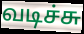
வடிச்சு